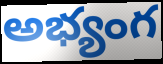
అభ్యంగ